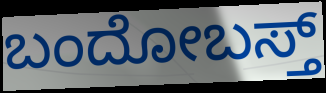
ಬಂದೋಬಸ್ತ್